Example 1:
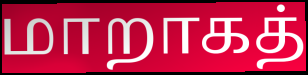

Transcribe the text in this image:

மாறாகத்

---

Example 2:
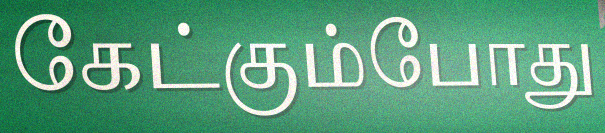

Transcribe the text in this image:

கேட்கும்போது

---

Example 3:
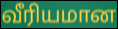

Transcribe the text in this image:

வீரியமான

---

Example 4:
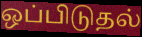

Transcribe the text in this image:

ஒப்பிடுதல்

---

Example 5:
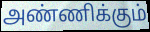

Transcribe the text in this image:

அண்ணிக்கும்